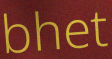
bhet